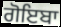
ਗੋਇਬਾ